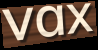
vax